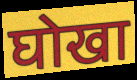
घोखा